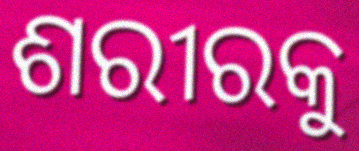
ଶରୀରକୁ